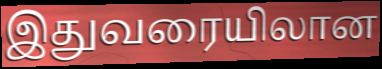
இதுவரையிலான